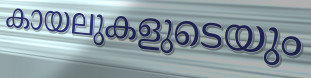
കായലുകളുടെയും